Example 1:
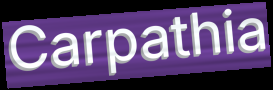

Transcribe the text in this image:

Carpathia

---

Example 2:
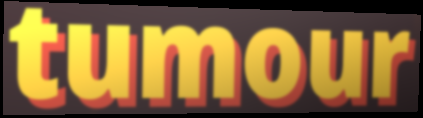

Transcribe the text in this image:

tumour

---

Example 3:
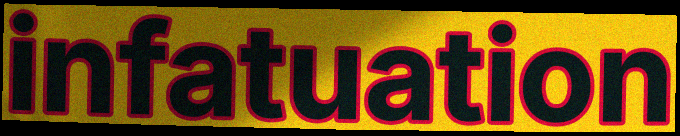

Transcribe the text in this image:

infatuation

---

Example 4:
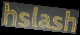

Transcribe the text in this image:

hslash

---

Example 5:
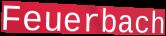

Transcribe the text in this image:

Feuerbach